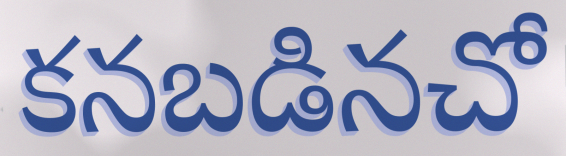
కనబడినచో